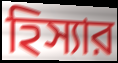
হিস্যার